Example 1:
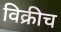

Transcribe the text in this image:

विक्रीच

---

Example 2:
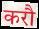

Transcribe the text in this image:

करौ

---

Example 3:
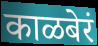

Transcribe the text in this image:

काळबेरं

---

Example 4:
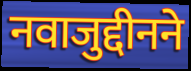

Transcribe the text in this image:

नवाजुद्दीनने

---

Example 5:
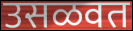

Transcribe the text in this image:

उसळवत